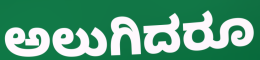
ಅಲುಗಿದರೂ